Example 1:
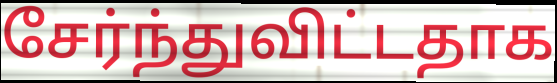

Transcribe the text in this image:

சேர்ந்துவிட்டதாக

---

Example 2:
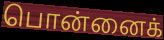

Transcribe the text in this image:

பொன்னைக்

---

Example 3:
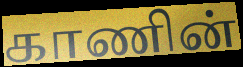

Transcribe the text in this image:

காணின்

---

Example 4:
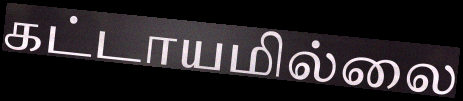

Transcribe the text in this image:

கட்டாயமில்லை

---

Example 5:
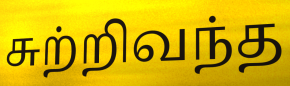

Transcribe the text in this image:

சுற்றிவந்த